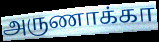
அருணாக்கா